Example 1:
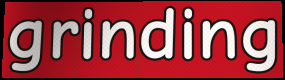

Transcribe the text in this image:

grinding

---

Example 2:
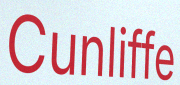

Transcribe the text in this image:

Cunliffe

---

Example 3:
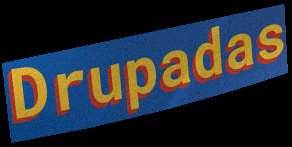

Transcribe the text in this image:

Drupadas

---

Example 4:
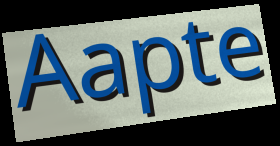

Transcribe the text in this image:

Aapte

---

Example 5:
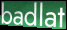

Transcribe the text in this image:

badlat